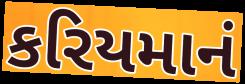
કરિયમાનં